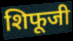
शिफूजी